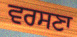
ਵਰਸਣਾ